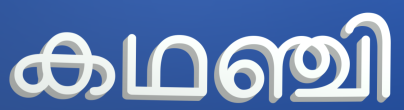
കഥഞ്ചി